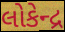
લોકેન્દ્ર